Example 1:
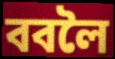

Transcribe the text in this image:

ববলৈ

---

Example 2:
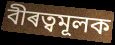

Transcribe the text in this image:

বীৰত্বমূলক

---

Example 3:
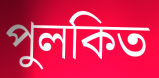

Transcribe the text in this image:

পুলকিত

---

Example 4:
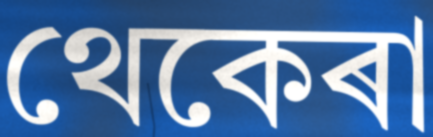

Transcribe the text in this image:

থেকেৰা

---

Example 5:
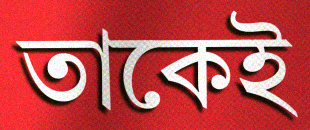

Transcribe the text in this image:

তাকেই